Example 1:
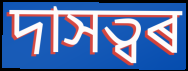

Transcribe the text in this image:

দাসত্বৰ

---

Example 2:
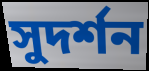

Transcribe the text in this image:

সুদৰ্শন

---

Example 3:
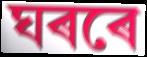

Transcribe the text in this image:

ঘৰৰে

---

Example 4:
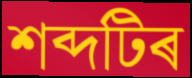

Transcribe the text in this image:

শব্দটিৰ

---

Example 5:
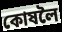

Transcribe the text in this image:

কোষলৈ